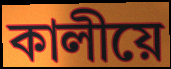
কালীয়ে